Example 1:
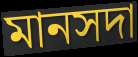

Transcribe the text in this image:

মানসদা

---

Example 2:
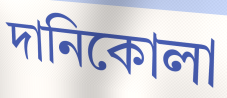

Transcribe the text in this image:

দানিকোলা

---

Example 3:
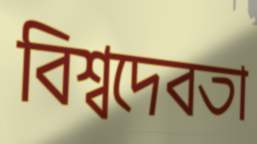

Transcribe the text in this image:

বিশ্বদেবতা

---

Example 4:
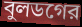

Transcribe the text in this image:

বুলডগের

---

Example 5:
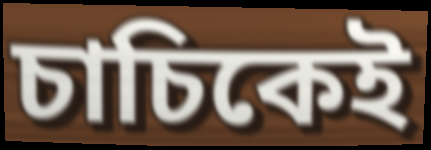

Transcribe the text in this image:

চাচিকেই